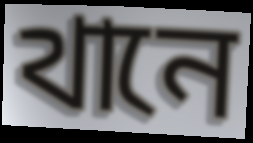
থানে